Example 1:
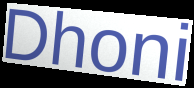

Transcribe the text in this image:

Dhoni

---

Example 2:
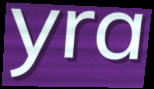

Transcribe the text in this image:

yra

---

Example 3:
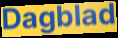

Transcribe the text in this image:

Dagblad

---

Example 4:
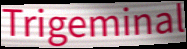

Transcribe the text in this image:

Trigeminal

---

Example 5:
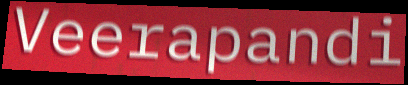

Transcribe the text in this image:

Veerapandi